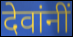
देवांनीं